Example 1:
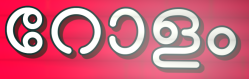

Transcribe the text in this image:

റോളം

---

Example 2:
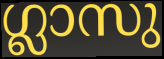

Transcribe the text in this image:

ഗ്ലാസു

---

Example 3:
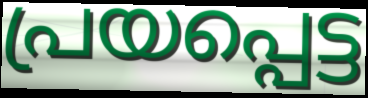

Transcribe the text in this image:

പ്രയപ്പെട്ട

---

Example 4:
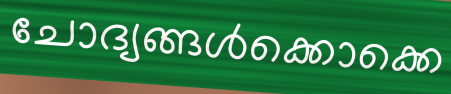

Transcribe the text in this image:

ചോദ്യങ്ങൾക്കൊക്കെ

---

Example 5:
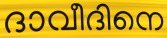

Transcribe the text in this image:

ദാവീദിനെ